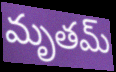
మృతమ్